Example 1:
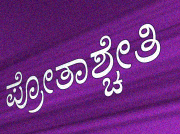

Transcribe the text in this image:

ಪ್ರೋತಾಶ್ಚೇತಿ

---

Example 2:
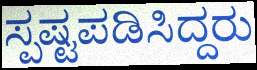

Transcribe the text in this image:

ಸ್ಪಷ್ಟಪಡಿಸಿದ್ದರು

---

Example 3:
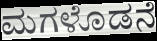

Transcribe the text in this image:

ಮಗಳೊಡನೆ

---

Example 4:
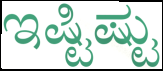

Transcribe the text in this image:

ಇಷ್ಟಿಷ್ಟು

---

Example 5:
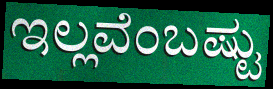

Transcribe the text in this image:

ಇಲ್ಲವೆಂಬಷ್ಟು